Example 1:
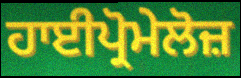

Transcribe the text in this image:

ਹਾਈਪ੍ਰੋਮੇਲੋਜ਼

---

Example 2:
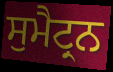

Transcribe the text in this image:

ਸੁਮੈਟ੍ਰਨ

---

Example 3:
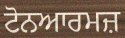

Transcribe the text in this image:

ਟੋਨਆਰਮਜ਼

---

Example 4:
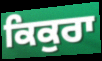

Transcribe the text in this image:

ਕਿਕੁਰਾ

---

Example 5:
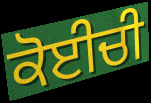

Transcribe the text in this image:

ਕੋਈਚੀ